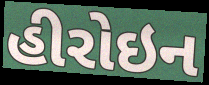
હીરોઇન